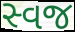
સ્વજ